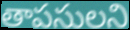
తాపసులని